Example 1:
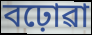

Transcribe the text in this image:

বঢ়োৱা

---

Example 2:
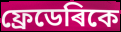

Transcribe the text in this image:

ফ্ৰেডেৰিকে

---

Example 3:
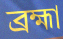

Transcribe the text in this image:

ব্ৰহ্মা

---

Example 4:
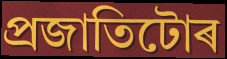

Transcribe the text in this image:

প্ৰজাতিটোৰ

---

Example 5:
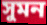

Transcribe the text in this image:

সুমন